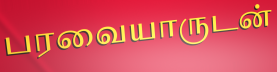
பரவையாருடன்